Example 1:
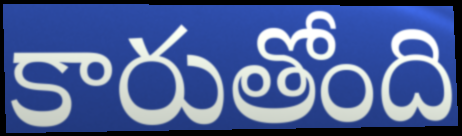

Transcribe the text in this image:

కారుతోంది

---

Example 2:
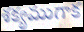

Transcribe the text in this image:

శక్యముగాక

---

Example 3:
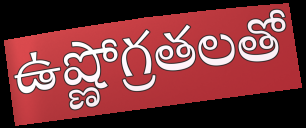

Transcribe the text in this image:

ఉష్ణోగ్రతలతో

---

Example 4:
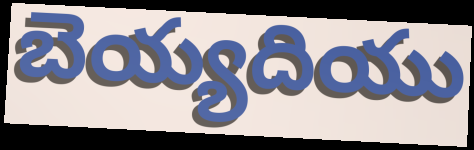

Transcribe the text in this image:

బెయ్యదియు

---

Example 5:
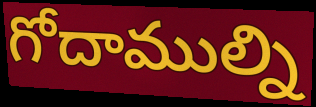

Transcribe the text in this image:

గోదాముల్ని